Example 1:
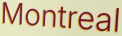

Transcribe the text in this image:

Montreal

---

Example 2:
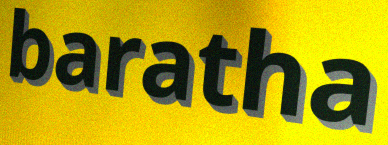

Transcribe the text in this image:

baratha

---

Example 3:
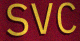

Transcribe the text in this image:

SVC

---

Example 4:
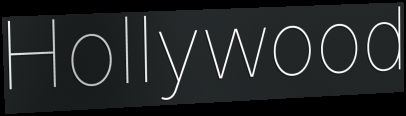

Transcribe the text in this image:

Hollywood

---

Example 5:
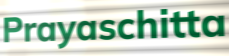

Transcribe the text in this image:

Prayaschitta